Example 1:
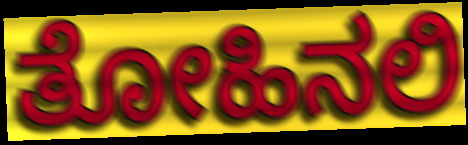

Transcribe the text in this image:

ತೋಹಿನಲಿ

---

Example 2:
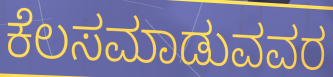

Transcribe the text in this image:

ಕೆಲಸಮಾಡುವವರ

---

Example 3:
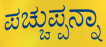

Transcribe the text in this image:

ಪಚ್ಚುಪ್ಪನ್ನಾ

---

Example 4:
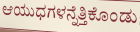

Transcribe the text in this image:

ಆಯುಧಗಳನ್ನೆತ್ತಿಕೊಂಡು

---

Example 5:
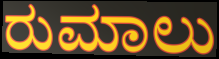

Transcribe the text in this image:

ರುಮಾಲು